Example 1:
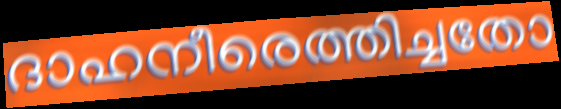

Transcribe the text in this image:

ദാഹനീരെത്തിച്ചതോ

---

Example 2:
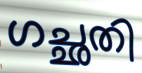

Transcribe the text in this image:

ഗച്ഛതി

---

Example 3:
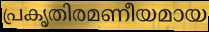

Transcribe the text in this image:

പ്രകൃതിരമണീയമായ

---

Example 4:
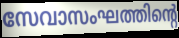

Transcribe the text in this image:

സേവാസംഘത്തിന്റെ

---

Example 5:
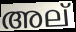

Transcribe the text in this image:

അല്